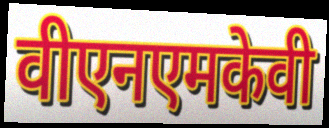
वीएनएमकेवी